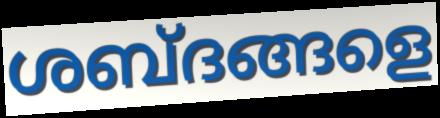
ശബ്ദങ്ങളെ